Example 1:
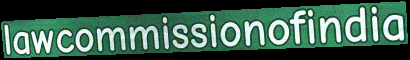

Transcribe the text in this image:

lawcommissionofindia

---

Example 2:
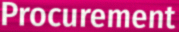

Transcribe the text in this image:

Procurement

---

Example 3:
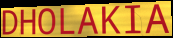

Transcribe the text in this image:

DHOLAKIA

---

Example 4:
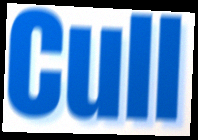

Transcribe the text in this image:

Cull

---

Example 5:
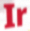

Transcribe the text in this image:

Ir